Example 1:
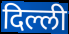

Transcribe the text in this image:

दिल्‍ली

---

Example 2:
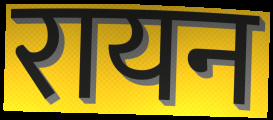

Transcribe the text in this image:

रायन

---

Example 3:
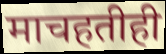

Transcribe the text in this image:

माचहतीही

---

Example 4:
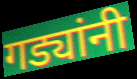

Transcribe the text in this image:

गड्यांनी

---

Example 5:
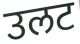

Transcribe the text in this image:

उलट